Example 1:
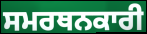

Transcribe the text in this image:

ਸਮਰਥਨਕਾਰੀ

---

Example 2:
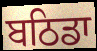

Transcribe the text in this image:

ਬਠਿਡਾ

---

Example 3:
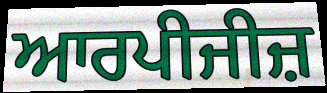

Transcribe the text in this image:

ਆਰਪੀਜੀਜ਼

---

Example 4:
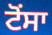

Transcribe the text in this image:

ਟੋਂਸਾ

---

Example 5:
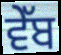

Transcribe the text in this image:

ਵੇੱਬ